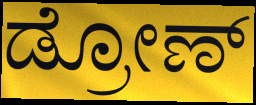
ಡ್ರೋಣ್